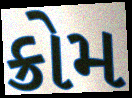
ક્રોમ